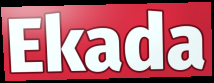
Ekada